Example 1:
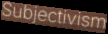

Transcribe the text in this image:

Subjectivism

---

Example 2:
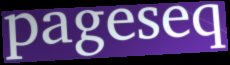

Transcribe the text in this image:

pageseq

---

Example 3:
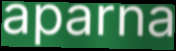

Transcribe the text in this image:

aparna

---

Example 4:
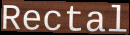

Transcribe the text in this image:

Rectal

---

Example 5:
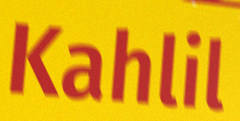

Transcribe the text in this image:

Kahlil